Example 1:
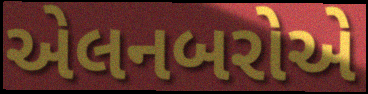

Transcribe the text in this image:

એલનબરોએ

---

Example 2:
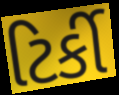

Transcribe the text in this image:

ટિર્કી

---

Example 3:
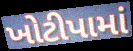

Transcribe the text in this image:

ખોટીપામાં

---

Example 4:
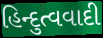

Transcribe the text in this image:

હિન્દુત્વવાદી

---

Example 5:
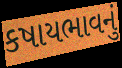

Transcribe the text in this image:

કષાયભાવનું